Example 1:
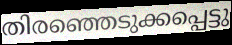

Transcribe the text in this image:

തിരഞ്ഞെടുക്കപ്പെട്ടു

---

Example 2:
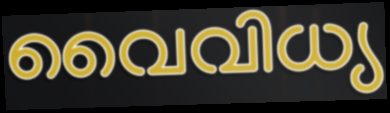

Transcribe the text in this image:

വൈവിധ്യ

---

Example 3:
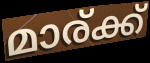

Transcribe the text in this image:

മാര്ക്ക്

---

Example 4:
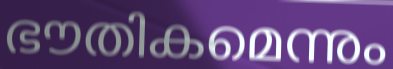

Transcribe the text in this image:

ഭൗതികമെന്നും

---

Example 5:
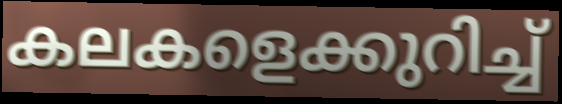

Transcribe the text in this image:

കലകളെക്കുറിച്ച്